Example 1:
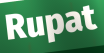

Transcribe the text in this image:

Rupat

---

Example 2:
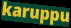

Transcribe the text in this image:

karuppu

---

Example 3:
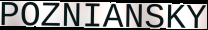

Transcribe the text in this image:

POZNIANSKY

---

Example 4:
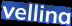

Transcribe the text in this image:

vellina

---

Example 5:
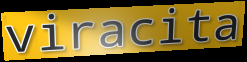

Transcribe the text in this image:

viracita